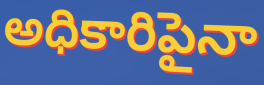
అధికారిపైనా